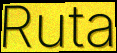
Ruta